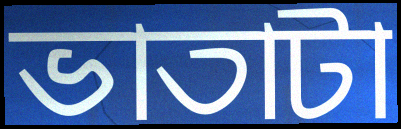
ভাতাটা